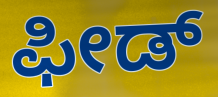
ಫೀಡ್